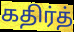
கதிர்த்